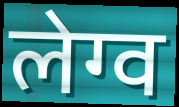
लेग्व